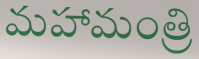
మహామంత్రి